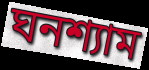
ঘনশ্যাম